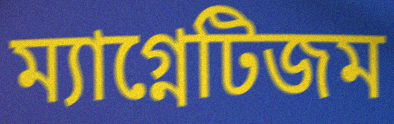
ম্যাগ্নেটিজম